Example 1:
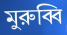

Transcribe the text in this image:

মুরুব্বি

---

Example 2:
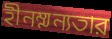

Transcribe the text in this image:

হীনম্মন্যতার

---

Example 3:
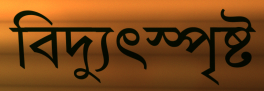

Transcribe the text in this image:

বিদ্যুৎস্পৃষ্ট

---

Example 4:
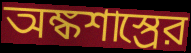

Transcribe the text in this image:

অঙ্কশাস্ত্রের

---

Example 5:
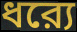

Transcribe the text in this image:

ধর‍্যে